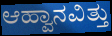
ಆಹ್ವಾನವಿತ್ತು